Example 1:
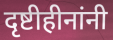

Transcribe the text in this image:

दृष्टीहीनांनी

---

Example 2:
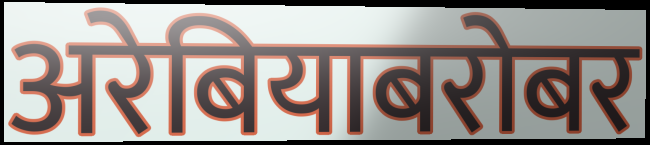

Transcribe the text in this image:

अरेबियाबरोबर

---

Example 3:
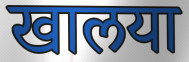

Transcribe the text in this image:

खालया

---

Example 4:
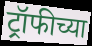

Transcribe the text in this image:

ट्रॉफीच्या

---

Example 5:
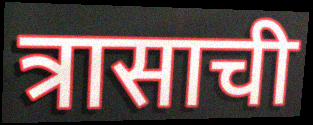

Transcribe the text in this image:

त्रासाची